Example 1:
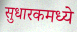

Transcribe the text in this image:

सुधारकमध्ये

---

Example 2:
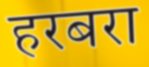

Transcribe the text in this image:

हरबरा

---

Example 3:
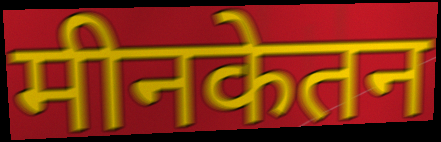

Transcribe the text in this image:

मीनकेतन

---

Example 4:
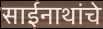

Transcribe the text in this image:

साईनाथांचे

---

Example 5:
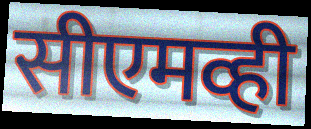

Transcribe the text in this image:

सीएमव्ही